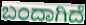
ಬಂದಾಗಿದೆ